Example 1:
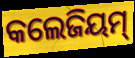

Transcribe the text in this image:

କଲେଜିୟମ୍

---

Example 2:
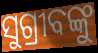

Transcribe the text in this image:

ସୁଗ୍ରୀବଙ୍କୁ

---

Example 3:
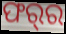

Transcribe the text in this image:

ଫର୍‌ର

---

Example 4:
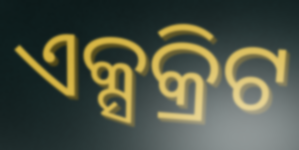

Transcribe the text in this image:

ଏକ୍ସକ୍ରିଟ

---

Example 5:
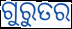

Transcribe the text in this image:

ଗୁରୁତର